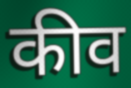
कीव